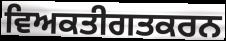
ਵਿਅਕਤੀਗਤਕਰਨ